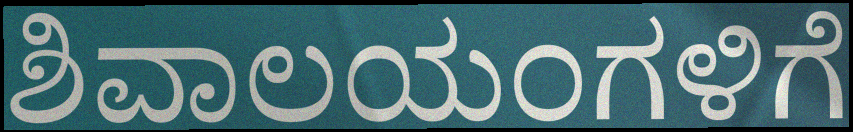
ಶಿವಾಲಯಂಗಳಿಗೆ